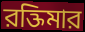
রক্তিমার